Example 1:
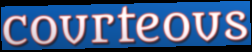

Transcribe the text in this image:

courteous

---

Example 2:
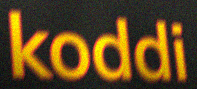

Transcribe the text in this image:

koddi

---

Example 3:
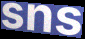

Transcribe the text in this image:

sns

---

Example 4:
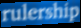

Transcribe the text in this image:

rulership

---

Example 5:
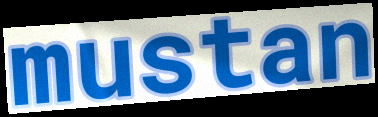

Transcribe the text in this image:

mustan